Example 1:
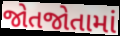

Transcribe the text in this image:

જોતજોતામાં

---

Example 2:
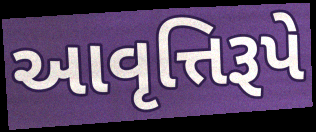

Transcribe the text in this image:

આવૃત્તિરૂપે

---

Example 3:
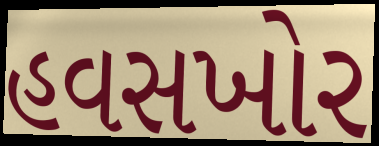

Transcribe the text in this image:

હવસખોર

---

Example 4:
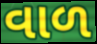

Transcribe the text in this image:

વાળ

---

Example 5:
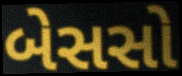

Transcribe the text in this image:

બેસસો